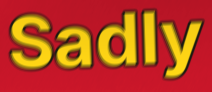
Sadly